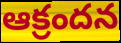
ఆక్రందన